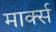
मार्क्‍स